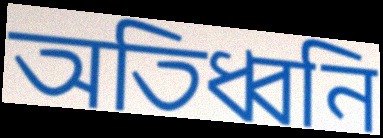
অতিধ্বনি